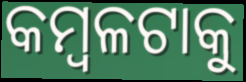
କମ୍ବଳଟାକୁ